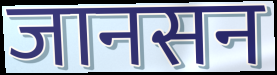
जानसन